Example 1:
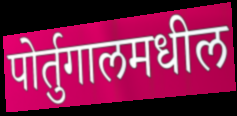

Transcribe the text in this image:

पोर्तुगालमधील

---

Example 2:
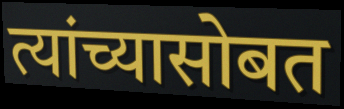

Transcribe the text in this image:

त्यांच्यासोबत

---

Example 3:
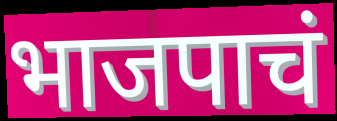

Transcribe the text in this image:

भाजपाचं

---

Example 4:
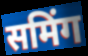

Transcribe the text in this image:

समिंग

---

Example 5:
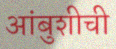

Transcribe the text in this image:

आंबुशीची